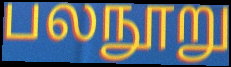
பலநூறு